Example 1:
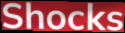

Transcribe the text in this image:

Shocks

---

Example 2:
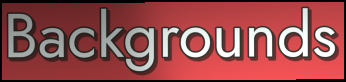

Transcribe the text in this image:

Backgrounds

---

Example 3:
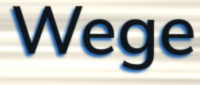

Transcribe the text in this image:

Wege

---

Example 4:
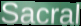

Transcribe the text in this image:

Sacral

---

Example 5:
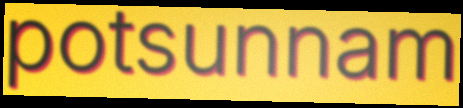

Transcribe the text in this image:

potsunnam